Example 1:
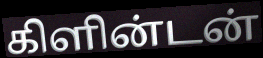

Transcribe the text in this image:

கிளின்டன்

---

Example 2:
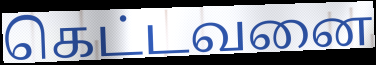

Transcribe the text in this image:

கெட்டவனை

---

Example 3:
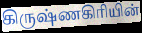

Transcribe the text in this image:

கிருஷ்ணகிரியின்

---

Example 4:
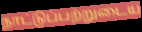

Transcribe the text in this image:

நாட்டுப்பற்றுடைய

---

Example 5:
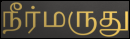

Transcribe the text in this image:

நீர்மருது